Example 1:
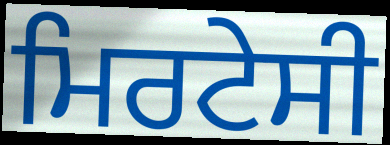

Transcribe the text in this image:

ਮਿਰਟੇਸੀ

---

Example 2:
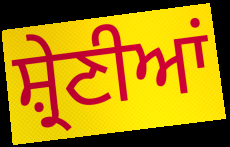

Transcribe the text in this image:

ਸ਼੍ਰੇਣੀਆਂ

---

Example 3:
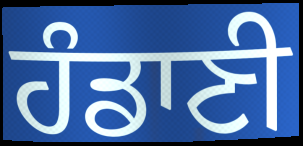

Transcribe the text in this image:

ਹੰਡਾਣੀ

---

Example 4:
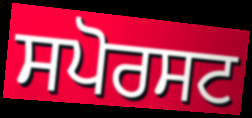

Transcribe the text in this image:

ਸਪੋਰਸਟ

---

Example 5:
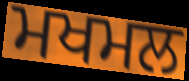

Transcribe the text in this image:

ਮਖਮਲ